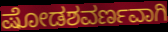
ಷೋಡಶವರ್ಣವಾಗಿ